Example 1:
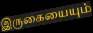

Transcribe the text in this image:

இருகையையும்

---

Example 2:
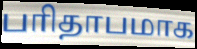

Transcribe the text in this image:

பரிதாபமாக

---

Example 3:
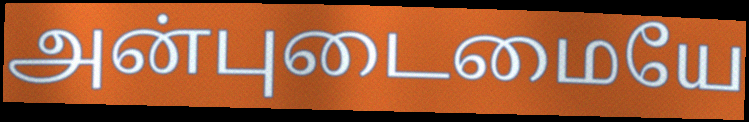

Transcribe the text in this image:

அன்புடைமையே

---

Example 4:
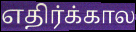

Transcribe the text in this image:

எதிர்க்கால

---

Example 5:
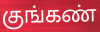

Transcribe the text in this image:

குங்கண்